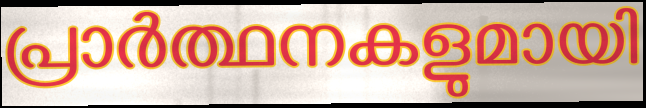
പ്രാർത്ഥനകളുമായി